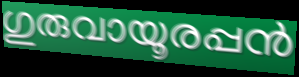
ഗുരുവായൂരപ്പൻ